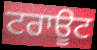
ਟਰਾਊਟ